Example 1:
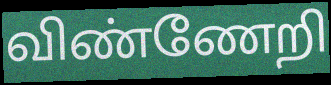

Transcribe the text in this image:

விண்ணேறி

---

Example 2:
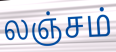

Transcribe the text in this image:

லஞ்சம்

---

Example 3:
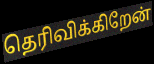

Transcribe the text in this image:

தெரிவிக்கிறேன்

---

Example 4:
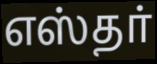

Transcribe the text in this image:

எஸ்தர்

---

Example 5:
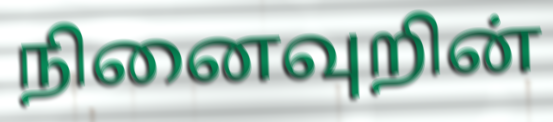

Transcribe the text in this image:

நினைவுறின்